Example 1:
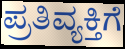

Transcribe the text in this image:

ಪ್ರತಿವ್ಯಕ್ತಿಗೆ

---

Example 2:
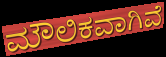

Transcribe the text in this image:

ಮೌಲಿಕವಾಗಿವೆ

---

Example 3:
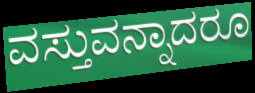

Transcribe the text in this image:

ವಸ್ತುವನ್ನಾದರೂ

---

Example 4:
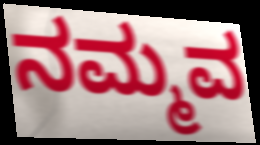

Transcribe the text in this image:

ನಮ್ಮವ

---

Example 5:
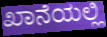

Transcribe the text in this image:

ಖಾನೆಯಲ್ಲಿ